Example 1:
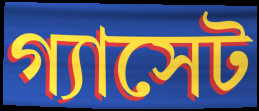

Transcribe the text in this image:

গ্যাসেট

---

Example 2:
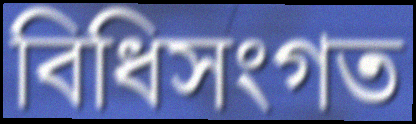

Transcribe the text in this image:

বিধিসংগত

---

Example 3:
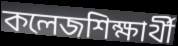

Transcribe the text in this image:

কলেজশিক্ষার্থী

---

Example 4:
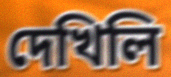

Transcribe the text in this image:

দেখিলি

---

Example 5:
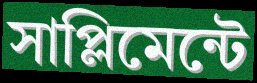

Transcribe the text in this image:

সাপ্লিমেন্টে